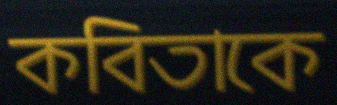
কবিতাকে